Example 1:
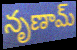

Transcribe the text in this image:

నృణామ్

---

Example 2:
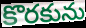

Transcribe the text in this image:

కొరకును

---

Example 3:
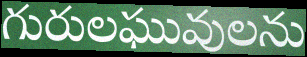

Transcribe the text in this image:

గురులఘువులను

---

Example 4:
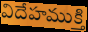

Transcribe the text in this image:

విదేహముక్తి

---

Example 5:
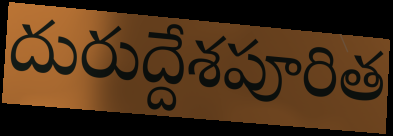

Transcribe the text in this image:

దురుద్దేశపూరిత